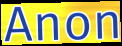
Anon